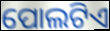
ପୋଲଟିଏ